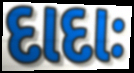
દાદાઃ